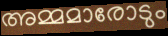
അമ്മമാരോടും